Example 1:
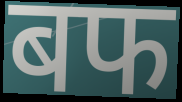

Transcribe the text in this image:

बफ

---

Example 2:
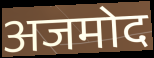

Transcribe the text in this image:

अजमोद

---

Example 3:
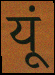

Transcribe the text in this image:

यूं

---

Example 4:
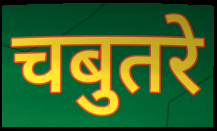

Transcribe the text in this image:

चबुतरे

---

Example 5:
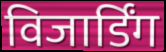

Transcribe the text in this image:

विजार्डिंग